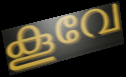
കൂവേ